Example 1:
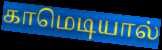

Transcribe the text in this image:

காமெடியால்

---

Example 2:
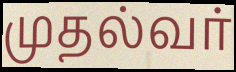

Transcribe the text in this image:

முதல்வர்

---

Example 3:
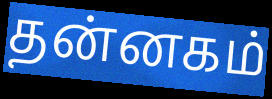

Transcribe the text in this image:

தன்னகம்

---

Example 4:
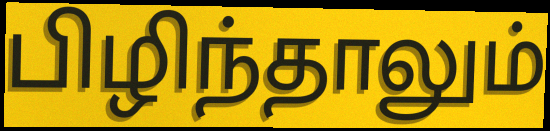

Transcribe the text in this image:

பிழிந்தாலும்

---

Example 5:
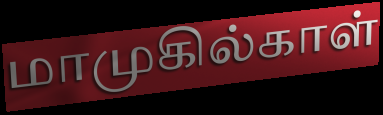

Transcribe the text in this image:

மாமுகில்காள்